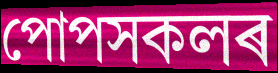
পোপসকলৰ